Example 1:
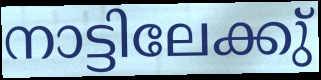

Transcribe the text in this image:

നാട്ടിലേക്കു്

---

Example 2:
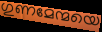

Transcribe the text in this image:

ഗുണമേന്മയെ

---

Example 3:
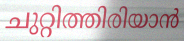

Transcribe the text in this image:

ചുറ്റിത്തിരിയാൻ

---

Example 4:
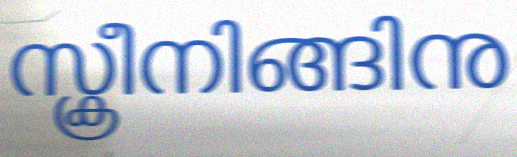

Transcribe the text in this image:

സ്ക്രീനിങ്ങിനു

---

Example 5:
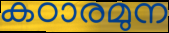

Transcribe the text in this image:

കഠാരമുന